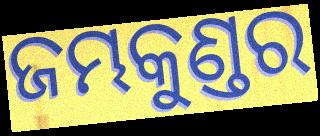
ଜମ୍ଭକୁଣ୍ଡର